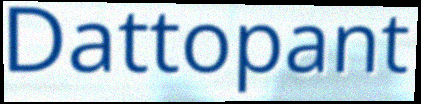
Dattopant